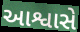
આશ્વાસે